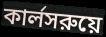
কার্লসরুয়ে